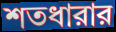
শতধারার